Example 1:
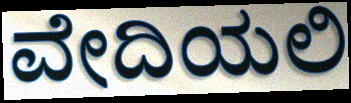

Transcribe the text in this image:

ವೇದಿಯಲಿ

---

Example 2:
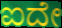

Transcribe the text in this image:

ಐದೇ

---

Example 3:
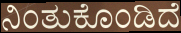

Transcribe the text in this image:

ನಿಂತುಕೊಂಡಿದೆ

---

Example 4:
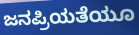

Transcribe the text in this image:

ಜನಪ್ರಿಯತೆಯೂ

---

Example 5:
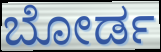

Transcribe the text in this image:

ಬೋರ್ಡ